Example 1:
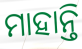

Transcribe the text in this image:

ମାହାନ୍ତି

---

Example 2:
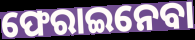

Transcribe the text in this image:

ଫେରାଇନେବା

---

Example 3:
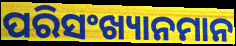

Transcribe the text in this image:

ପରିସଂଖ୍ୟାନମାନ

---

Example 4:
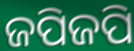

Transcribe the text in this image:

ଜପିଜପି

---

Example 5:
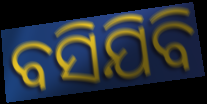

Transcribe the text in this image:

ବସିଯିବି